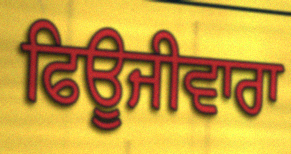
ਫਿਊਜੀਵਾਰਾ